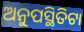
ଅନୁପସ୍ଥିତିଟା